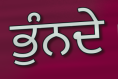
ਭੁੰਨਦੇ